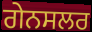
ਗੇਨਸਲਰ